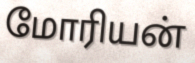
மோரியன்